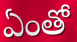
ఏంతో